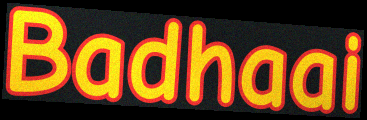
Badhaai